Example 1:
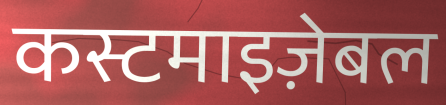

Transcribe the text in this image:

कस्टमाइज़ेबल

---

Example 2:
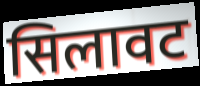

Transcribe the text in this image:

सिलावट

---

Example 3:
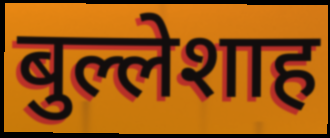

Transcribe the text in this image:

बुल्लेशाह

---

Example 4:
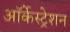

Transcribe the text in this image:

ऑर्केस्ट्रेशन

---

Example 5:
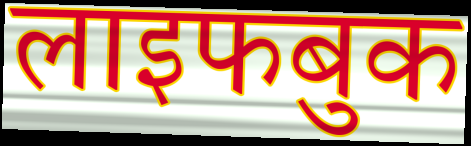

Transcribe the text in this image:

लाइफबुक